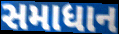
સમાધાન